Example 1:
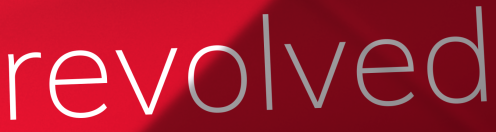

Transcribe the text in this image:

revolved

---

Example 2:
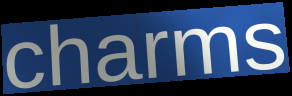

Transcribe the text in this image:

charms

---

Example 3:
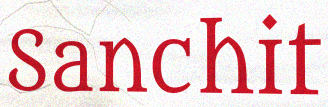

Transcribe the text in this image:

Sanchit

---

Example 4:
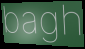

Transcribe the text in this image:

bagh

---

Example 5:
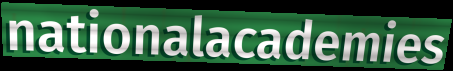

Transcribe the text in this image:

nationalacademies